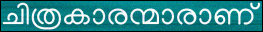
ചിത്രകാരന്മാരാണ്